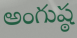
అంగుష్ఠ